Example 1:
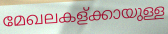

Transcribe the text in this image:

മേഖലകള്ക്കായുള്ള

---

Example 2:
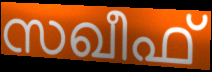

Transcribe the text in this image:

സഖീഫ്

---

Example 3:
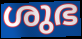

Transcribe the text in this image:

ശുഭ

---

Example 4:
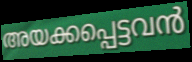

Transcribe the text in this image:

അയക്കപ്പെട്ടവൻ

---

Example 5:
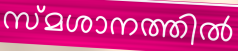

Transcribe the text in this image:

സ്മശാനത്തിൽ